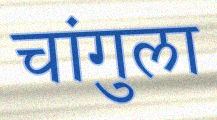
चांगुला